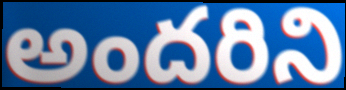
అందరిని